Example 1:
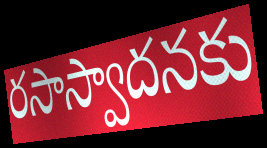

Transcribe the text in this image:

రసాస్వాదనకు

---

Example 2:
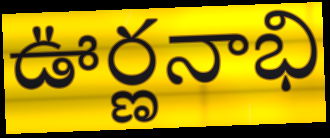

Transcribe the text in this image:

ఊర్ణనాభి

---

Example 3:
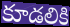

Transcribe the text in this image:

కూడలికి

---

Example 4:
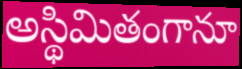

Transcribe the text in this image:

అస్థిమితంగానూ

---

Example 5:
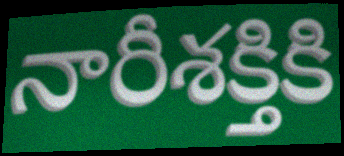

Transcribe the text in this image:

నారీశక్తికి